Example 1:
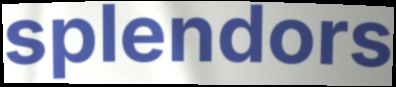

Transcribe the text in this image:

splendors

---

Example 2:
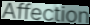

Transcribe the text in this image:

Affection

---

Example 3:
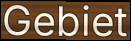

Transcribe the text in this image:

Gebiet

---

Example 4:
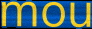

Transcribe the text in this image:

mou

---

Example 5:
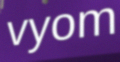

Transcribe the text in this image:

vyom